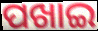
ପଖାଇ